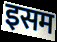
इसम